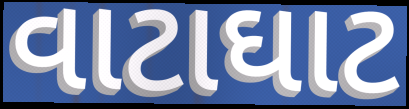
વાટાઘાટ